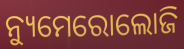
ନ୍ୟୁମେରୋଲୋଜି